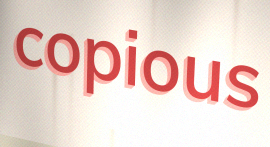
copious